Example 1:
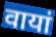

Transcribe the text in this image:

वायां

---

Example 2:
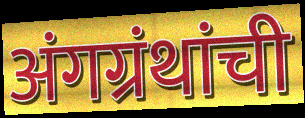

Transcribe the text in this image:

अंगग्रंथांची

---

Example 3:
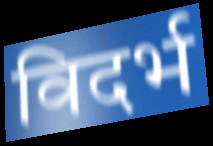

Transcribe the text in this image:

विदर्भ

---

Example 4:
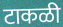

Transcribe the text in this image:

टाकळी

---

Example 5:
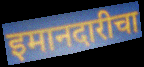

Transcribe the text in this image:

इमानदारीचा